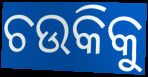
ଚଉକିକୁ